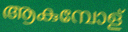
ആകുമ്പോള്